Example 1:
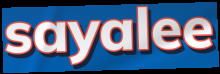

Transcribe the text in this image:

sayalee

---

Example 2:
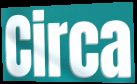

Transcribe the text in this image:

Circa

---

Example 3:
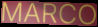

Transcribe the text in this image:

MARCO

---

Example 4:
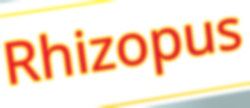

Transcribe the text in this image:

Rhizopus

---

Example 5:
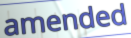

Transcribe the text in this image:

amended